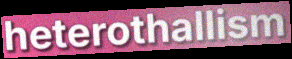
heterothallism